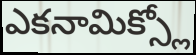
ఎకనామిక్స్లో